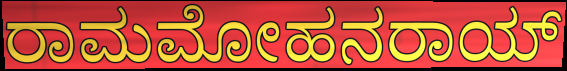
ರಾಮಮೋಹನರಾಯ್